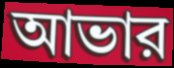
আভার